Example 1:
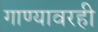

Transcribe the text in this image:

गाण्यावरही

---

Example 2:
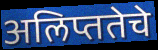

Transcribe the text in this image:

अलिप्ततेचे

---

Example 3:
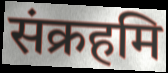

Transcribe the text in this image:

संक्रहमि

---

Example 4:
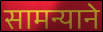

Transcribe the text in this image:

सामन्याने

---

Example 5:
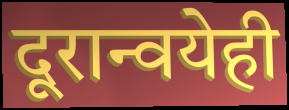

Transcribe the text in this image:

दूरान्वयेही